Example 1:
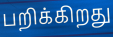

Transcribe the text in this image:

பறிக்கிறது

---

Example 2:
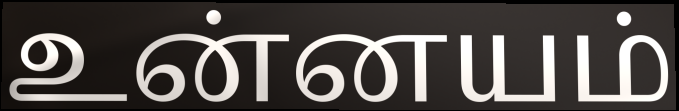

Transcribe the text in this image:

உன்னயம்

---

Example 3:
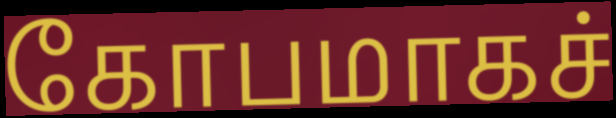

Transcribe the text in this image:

கோபமாகச்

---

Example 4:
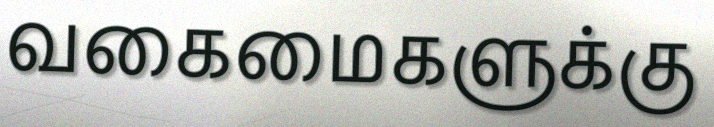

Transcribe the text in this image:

வகைமைகளுக்கு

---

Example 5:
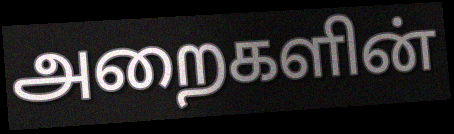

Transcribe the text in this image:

அறைகளின்